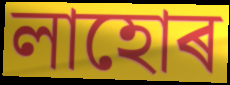
লাহোৰ